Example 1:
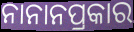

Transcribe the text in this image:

ନାନାନପ୍ରକାର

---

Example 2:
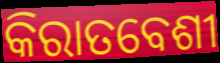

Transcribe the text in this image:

କିରାତବେଶୀ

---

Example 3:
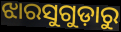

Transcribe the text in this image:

ଝାରସୁଗୁଡ଼ାରୁ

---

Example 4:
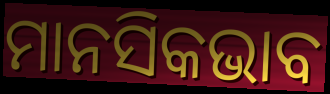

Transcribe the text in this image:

ମାନସିକଭାବ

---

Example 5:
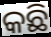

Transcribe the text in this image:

କଛି